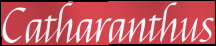
Catharanthus